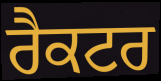
ਰੈਕਟਰ